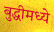
बुद्धीमध्ये